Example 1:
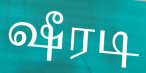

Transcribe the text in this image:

ஷீரடி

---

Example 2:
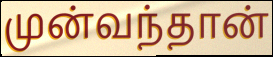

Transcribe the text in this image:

முன்வந்தான்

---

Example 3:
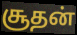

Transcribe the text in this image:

சூதன்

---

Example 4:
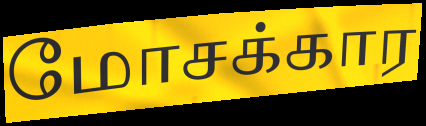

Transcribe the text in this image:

மோசக்கார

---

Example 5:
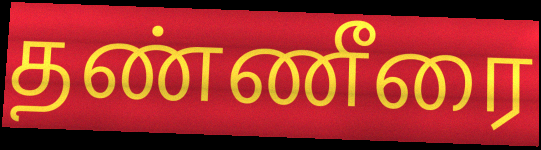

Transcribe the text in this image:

தண்ணீரை